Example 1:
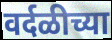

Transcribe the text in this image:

वर्दळीच्या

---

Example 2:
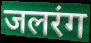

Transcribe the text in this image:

जलरंग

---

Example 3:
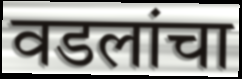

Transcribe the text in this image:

वडलांचा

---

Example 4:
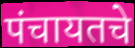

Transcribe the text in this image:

पंचायतचे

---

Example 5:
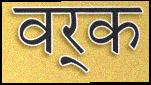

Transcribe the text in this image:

वर्क